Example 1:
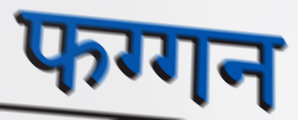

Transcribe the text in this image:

फग्‍गन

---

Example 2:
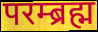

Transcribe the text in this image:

परम्ब्रह्म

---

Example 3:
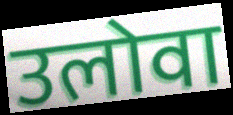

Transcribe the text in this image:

उलोवा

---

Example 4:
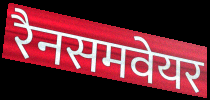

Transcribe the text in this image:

रैनसमवेयर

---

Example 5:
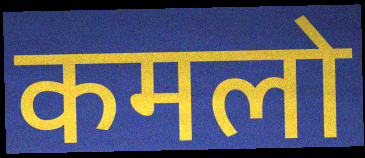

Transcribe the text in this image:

कमलो